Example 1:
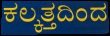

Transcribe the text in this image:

ಕಲ್ಕತ್ತದಿಂದ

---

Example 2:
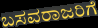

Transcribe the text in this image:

ಬಸವರಾಜರಿಗೆ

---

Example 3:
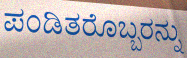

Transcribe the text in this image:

ಪಂಡಿತರೊಬ್ಬರನ್ನು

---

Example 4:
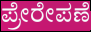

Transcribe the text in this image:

ಪ್ರೇರೇಪಣೆ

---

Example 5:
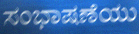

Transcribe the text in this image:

ಸಂಭಾಷಣೆಯು